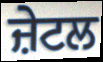
ਜ਼ੇਟਲ